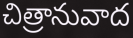
చిత్రానువాద